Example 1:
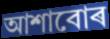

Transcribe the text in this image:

আশাবোৰ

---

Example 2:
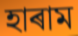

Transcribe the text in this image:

হাৰাম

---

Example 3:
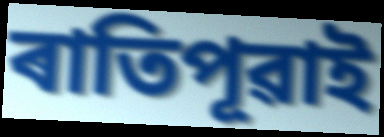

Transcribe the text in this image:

ৰাতিপূৱাই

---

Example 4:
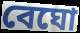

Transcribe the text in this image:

বেঘো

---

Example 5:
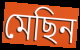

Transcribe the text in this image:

মেছিন